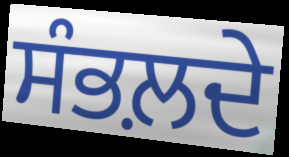
ਸੰਭਲ਼ਦੇ